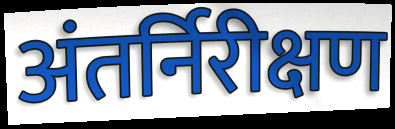
अंतर्निरीक्षण